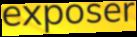
exposer